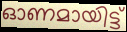
ഓണമായിട്ട്